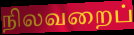
நிலவறைப்